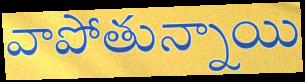
వాపోతున్నాయి